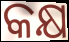
କକ୍ଷ